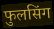
फुलसिंग